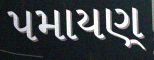
પમાયણ્